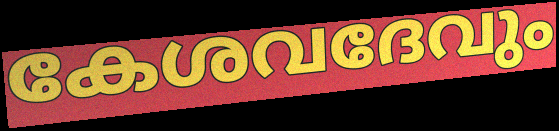
കേശവദേവും